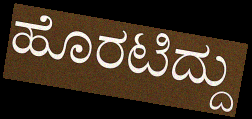
ಹೊರಟಿದ್ದು